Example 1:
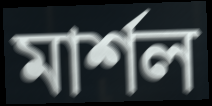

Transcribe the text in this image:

মার্শল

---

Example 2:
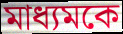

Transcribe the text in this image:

মাধ্যমকে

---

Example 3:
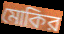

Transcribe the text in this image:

মোকির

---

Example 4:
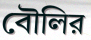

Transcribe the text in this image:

বৌলির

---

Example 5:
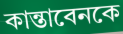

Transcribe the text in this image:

কান্তাবেনকে